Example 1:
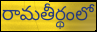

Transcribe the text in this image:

రామతీర్థంలో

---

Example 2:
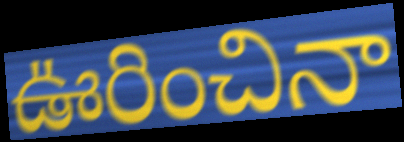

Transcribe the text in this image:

ఊరించినా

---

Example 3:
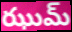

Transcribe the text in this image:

ఝుమ్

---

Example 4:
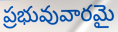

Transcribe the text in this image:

ప్రభువువారమై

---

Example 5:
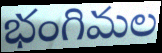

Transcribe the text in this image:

భంగిమల